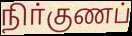
நிர்குணப்